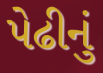
પેઢીનું